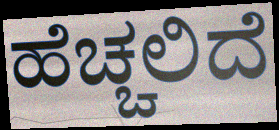
ಹೆಚ್ಚಲಿದೆ